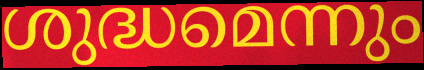
ശുദ്ധമെന്നും